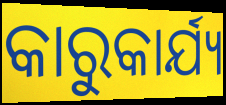
କାରୁକାର୍ଯ୍ୟ